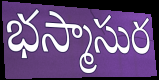
భస్మాసుర